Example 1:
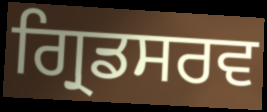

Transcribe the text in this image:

ਗ੍ਰਿਡਸਰਵ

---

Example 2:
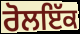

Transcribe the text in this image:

ਰੋਲਇੱਕ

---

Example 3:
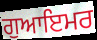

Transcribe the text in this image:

ਗੁਆਇਮਰ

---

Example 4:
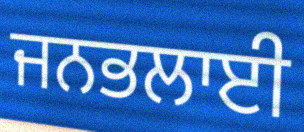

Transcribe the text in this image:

ਜਨਭਲਾਈ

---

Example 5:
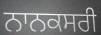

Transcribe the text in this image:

ਨਾਨਕਸਰੀ